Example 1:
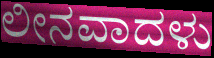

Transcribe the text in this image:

ಲೀನವಾದಳು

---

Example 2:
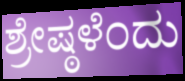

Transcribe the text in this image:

ಶ್ರೇಷ್ಠಳೆಂದು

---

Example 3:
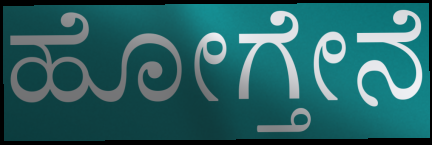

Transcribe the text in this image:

ಹೋಗ್ತೇನೆ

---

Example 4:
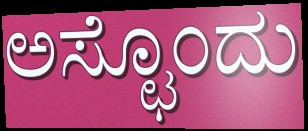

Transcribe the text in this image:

ಅಸ್ಟೊಂದು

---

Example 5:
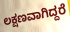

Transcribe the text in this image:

ಲಕ್ಷಣವಾಗಿದ್ದರೆ